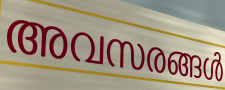
അവസരങ്ങൾ